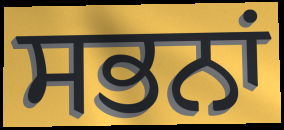
ਸਭਨਾਂ